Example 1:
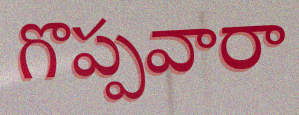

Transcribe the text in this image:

గొప్పవారా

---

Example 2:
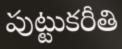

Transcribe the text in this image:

పుట్టుకరీతి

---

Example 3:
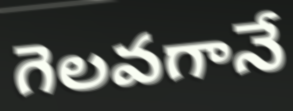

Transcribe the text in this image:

గెలవగానే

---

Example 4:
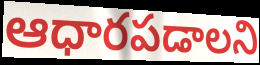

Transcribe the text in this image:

ఆధారపడాలని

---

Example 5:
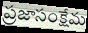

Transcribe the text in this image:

ప్రజాసంక్షేమ